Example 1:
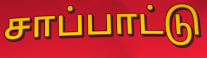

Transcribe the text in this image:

சாப்பாட்டு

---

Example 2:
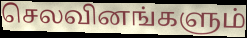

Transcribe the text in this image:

செலவினங்களும்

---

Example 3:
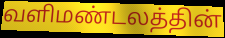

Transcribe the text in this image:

வளிமண்டலத்தின்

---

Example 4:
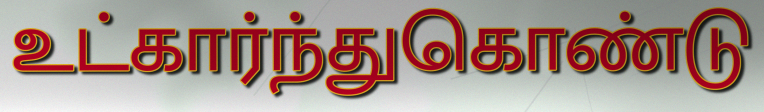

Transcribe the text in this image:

உட்கார்ந்துகொண்டு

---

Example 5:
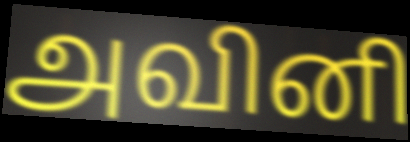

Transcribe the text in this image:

அவினி